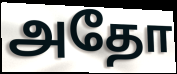
அதோ